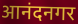
आनंदनगर